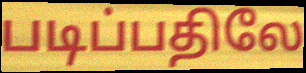
படிப்பதிலே